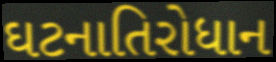
ઘટનાતિરોધાન